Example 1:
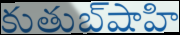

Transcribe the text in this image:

కుతుబ్‌షాహి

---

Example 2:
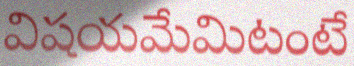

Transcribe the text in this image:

విషయమేమిటంటే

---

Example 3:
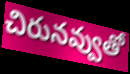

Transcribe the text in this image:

చిరునవ్వుతో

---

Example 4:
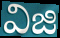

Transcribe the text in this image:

విజి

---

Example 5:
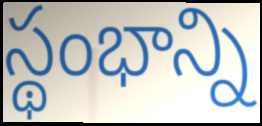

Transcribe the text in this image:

స్థంభాన్ని